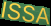
ISSA